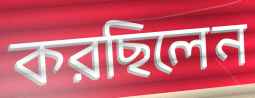
করছিলেন